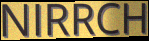
NIRRCH